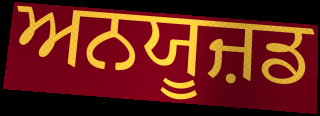
ਅਨਯੂਜ਼ਡ